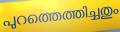
പുറത്തെത്തിച്ചതും